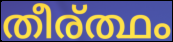
തീര്ത്ഥം